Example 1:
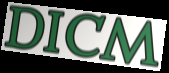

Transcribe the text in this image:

DICM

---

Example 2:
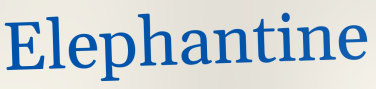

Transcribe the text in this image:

Elephantine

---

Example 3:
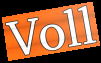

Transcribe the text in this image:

Voll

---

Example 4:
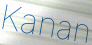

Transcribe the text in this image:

Kanan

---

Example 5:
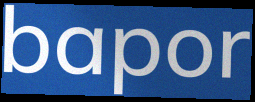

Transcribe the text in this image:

bapor